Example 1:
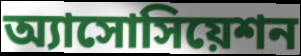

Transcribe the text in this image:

অ্যাসোসিয়েশন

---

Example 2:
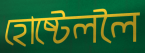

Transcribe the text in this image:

হোষ্টেললৈ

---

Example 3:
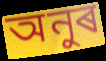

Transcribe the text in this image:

অনুৰ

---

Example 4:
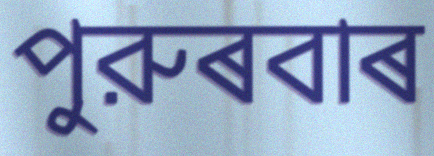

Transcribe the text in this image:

পুৰুৰবাৰ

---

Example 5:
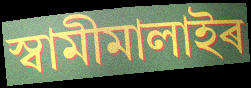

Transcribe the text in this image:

স্বামীমালাইৰ